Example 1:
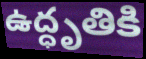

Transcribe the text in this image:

ఉద్ధృతికి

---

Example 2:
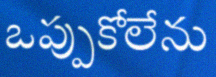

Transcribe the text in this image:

ఒప్పుకోలేను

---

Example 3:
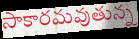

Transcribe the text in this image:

సాకారమవుతున్న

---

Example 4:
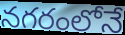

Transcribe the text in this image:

నగరంలోనే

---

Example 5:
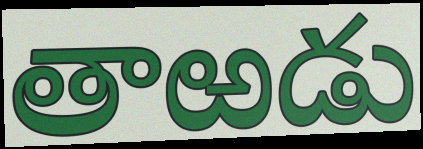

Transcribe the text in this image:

తాఱడు